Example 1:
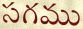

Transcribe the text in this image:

సగము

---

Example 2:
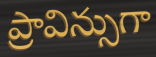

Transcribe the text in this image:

ప్రావిన్సుగా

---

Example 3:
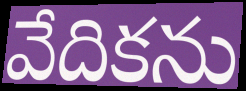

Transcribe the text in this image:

వేదికను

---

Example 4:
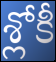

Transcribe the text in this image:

శ్లోకీ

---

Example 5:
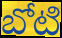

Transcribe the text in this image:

బోటి